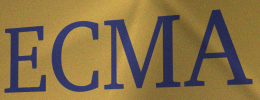
ECMA